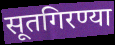
सूतगिरण्या